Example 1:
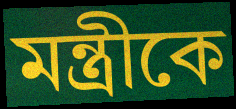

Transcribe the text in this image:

মন্ত্রীকে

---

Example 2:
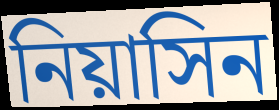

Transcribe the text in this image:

নিয়াসিন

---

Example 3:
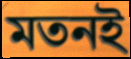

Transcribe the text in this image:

মতনই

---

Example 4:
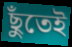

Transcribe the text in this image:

ছুঁতেই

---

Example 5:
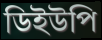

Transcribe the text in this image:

ডিইউপি